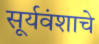
सूर्यवंशाचे